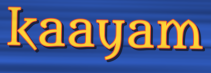
kaayam